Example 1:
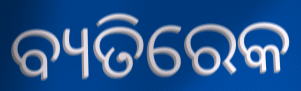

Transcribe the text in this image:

ବ୍ୟତିରେକ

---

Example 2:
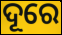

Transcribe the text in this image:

ଦୂରେ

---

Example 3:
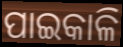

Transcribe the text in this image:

ପାଇକାଳି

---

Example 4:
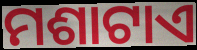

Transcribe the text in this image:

ମଶାଟାଏ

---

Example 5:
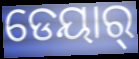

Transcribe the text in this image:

ଡେୟାର୍